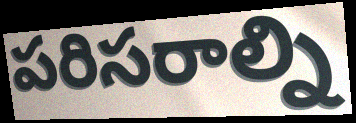
పరిసరాల్ని